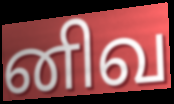
னிவ